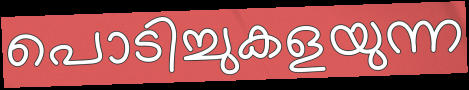
പൊടിച്ചുകളയുന്ന